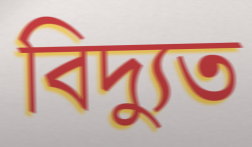
বিদ্যুত